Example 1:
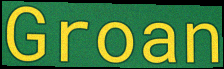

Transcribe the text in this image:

Groan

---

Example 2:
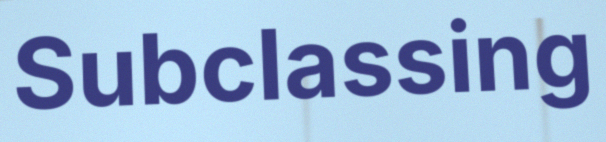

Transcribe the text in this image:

Subclassing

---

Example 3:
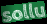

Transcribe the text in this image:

sollu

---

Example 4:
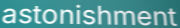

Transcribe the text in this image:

astonishment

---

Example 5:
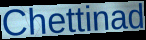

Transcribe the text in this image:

Chettinad